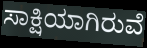
ಸಾಕ್ಷಿಯಾಗಿರುವೆ